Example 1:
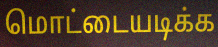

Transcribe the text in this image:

மொட்டையடிக்க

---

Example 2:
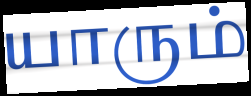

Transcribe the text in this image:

யாரும்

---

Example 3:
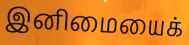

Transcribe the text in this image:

இனிமையைக்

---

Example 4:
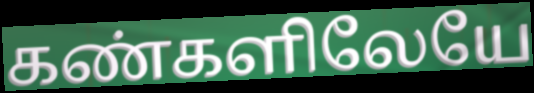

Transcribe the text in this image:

கண்களிலேயே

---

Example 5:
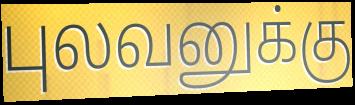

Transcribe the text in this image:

புலவனுக்கு